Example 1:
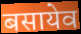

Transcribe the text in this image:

बसायेव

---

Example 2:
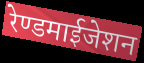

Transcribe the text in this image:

रेण्डमाईजेशन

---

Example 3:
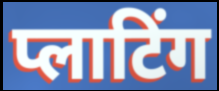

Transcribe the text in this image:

प्लाटिंग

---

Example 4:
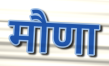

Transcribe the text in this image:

मौणा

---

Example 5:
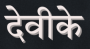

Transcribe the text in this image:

देवीके